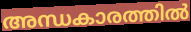
അന്ധകാരത്തിൽ